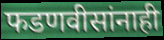
फडणवीसांनाही